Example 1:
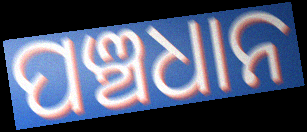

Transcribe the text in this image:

ପଞ୍ଚଧାନ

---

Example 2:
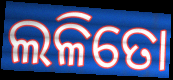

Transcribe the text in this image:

ଲଳିତୋ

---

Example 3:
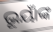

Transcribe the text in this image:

ଭୂୟାଁଙ୍କ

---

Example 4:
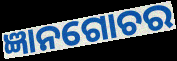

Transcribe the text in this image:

ଜ୍ଞାନଗୋଚର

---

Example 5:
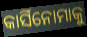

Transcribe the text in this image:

କାର୍ସିନୋମାକୁ